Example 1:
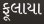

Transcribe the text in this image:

ફૂલાયા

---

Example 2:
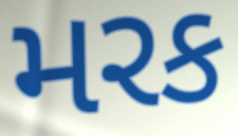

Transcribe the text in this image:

મરક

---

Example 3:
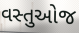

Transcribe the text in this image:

વસ્તુઓજ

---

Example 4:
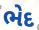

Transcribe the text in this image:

ભેદ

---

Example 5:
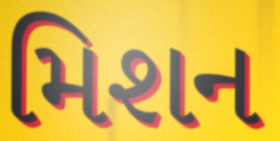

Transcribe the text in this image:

મિશન